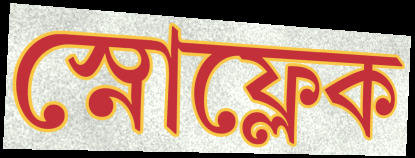
স্নোফ্লেক